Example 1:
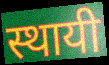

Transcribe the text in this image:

स्थायी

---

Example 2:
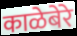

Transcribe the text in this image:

काळेबेरे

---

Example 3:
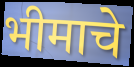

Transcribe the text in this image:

भीमाचे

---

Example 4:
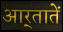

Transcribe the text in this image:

आर्तातें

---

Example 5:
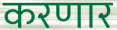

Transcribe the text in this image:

करणार